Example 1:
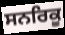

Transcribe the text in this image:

ਸਨਰਿਕੂ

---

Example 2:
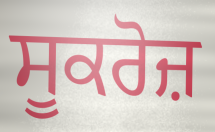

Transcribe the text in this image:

ਸੂਕਰੋਜ਼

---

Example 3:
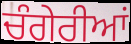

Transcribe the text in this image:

ਚੰਗੇਰੀਆਂ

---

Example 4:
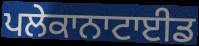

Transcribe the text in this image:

ਪਲੇਕਾਨਾਟਾਈਡ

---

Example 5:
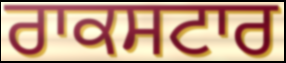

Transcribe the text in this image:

ਰਾਕਸਟਾਰ